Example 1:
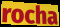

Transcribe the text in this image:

rocha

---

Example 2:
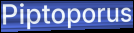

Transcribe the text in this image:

Piptoporus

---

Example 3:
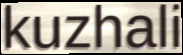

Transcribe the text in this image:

kuzhali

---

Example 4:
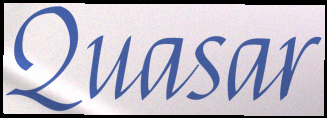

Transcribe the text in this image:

Quasar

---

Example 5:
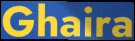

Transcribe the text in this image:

Ghaira